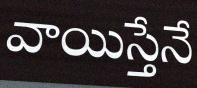
వాయిస్తేనే